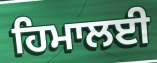
ਹਿਮਾਲਈ